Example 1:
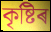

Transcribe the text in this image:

কৃষ্টিৰ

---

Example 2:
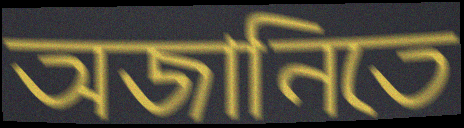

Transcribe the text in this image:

অজানিতে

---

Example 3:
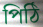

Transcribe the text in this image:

পিঠি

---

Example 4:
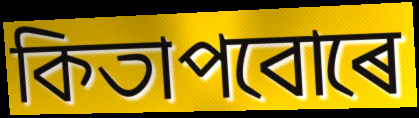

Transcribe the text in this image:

কিতাপবোৰে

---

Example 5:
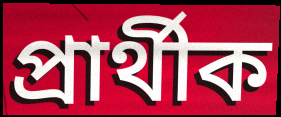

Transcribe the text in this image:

প্ৰাৰ্থীক